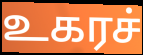
உகரச்